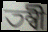
তম্বী